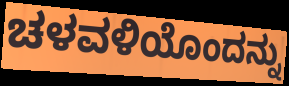
ಚಳವಳಿಯೊಂದನ್ನು